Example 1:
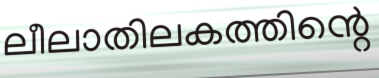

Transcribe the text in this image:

ലീലാതിലകത്തിന്റെ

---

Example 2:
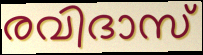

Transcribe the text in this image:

രവിദാസ്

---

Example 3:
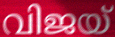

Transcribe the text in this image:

വിജയ്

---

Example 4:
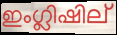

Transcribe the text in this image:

ഇംഗ്ലിഷില്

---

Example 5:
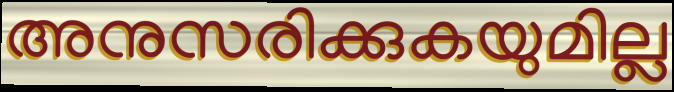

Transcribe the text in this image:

അനുസരിക്കുകയുമില്ല